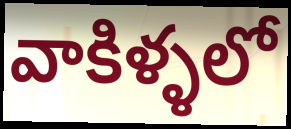
వాకిళ్ళలో